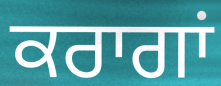
ਕਰਾਗਾਂ